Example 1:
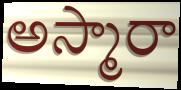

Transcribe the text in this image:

అస్మారా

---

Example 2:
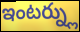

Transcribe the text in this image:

ఇంటర్న్లు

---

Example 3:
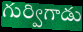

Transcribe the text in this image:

గుర్విగాడు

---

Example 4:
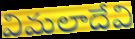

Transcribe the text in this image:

విమలాదేవి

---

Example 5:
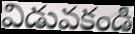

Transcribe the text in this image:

విడువకండి